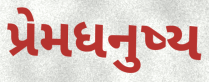
પ્રેમધનુષ્ય